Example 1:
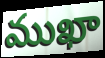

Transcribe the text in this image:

ముఖా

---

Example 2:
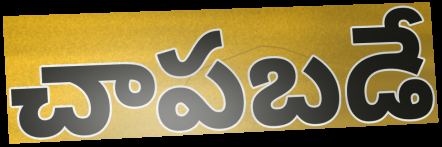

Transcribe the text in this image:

చాపబడే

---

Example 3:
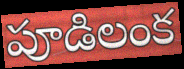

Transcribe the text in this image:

పూడిలంక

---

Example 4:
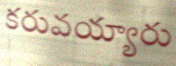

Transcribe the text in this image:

కరువయ్యారు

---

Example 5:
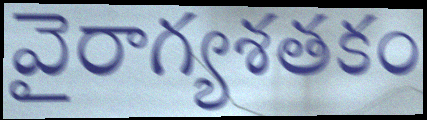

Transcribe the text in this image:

వైరాగ్యశతకం